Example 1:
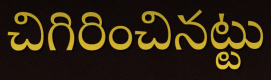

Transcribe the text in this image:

చిగిరించినట్టు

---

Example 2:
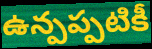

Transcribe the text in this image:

ఉన్పప్పటికీ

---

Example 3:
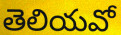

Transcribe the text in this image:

తెలియవో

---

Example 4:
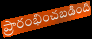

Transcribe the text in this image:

ప్రారంభించబడింది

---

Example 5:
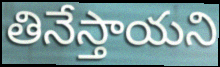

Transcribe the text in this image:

తినేస్తాయని